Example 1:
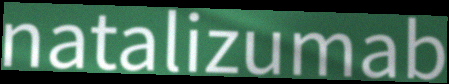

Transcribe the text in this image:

natalizumab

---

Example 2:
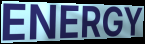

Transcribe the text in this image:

ENERGY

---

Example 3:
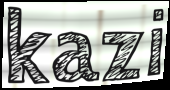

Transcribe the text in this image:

kazi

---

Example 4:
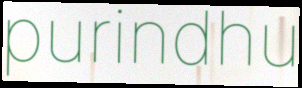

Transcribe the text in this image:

purindhu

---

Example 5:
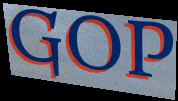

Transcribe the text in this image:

GOP